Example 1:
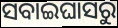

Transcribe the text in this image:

ସବାଇଘାସରୁ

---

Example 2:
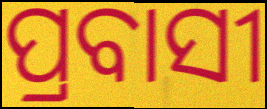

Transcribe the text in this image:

ପ୍ରବାସୀ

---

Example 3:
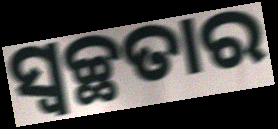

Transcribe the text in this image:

ସ୍ଵଚ୍ଛତାର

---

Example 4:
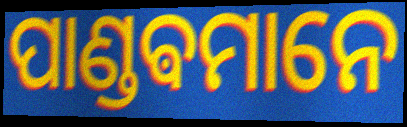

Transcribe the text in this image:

ପାଣ୍ଡଵମାନେ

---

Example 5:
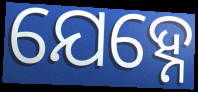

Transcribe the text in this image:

ଯେହ୍ନେ